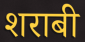
शराबी